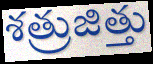
శత్రుజిత్తు